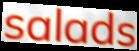
salads